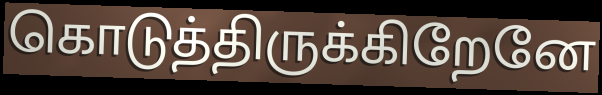
கொடுத்திருக்கிறேனே